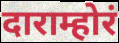
दाराम्होरं